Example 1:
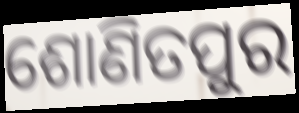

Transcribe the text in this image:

ଶୋଣିତପୁର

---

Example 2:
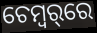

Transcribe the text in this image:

ଚେମ୍ବର୍‌ରେ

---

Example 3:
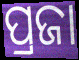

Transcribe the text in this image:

ପ୍ରଜା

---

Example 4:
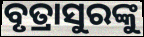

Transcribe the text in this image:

ବୃତ୍ରାସୁରଙ୍କୁ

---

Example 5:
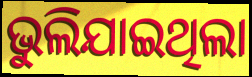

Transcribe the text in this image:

ଭୁଲିଯାଇଥିଲା